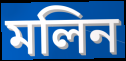
মলিন